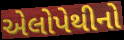
એલોપેથીનો